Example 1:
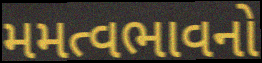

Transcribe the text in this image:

મમત્વભાવનો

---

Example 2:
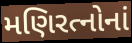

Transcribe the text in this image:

મણિરત્નોનાં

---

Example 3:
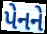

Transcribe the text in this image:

પેનને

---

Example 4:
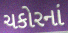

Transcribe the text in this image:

ચકોરનાં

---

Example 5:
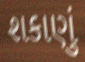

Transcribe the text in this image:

શકાણું